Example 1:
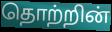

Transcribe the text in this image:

தொற்றின்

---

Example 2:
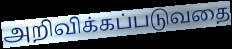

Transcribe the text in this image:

அறிவிக்கப்படுவதை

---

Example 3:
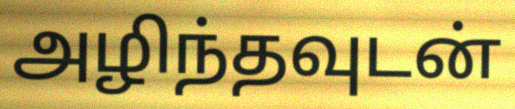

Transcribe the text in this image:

அழிந்தவுடன்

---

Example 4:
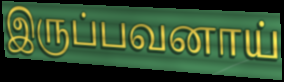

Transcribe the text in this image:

இருப்பவனாய்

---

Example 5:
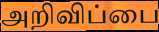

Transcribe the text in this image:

அறிவிப்பை